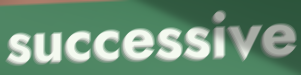
successive